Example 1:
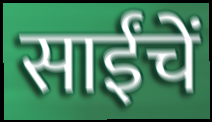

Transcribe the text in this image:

साईंचें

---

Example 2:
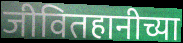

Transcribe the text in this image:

जीवितहानीच्या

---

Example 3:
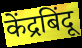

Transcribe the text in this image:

केंद्रबिंदू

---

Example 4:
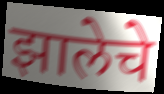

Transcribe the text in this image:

झालेचे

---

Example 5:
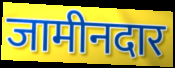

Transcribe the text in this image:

जामीनदार